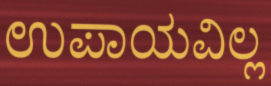
ಉಪಾಯವಿಲ್ಲ